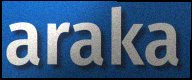
araka